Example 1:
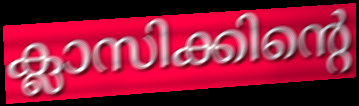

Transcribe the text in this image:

ക്ലാസിക്കിന്റെ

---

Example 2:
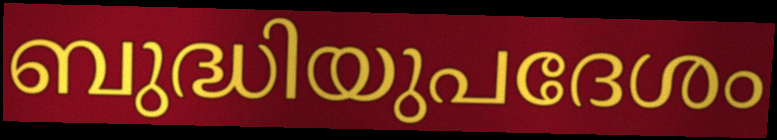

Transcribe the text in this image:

ബുദ്ധിയുപദേശം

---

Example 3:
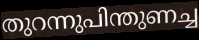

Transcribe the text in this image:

തുറന്നുപിന്തുണച്ച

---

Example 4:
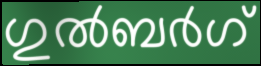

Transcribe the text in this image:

ഗുൽബർഗ്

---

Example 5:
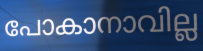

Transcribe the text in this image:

പോകാനാവില്ല